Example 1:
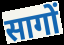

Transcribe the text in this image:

सागों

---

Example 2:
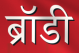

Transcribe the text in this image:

ब्रॉडी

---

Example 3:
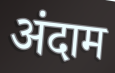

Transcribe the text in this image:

अंदाम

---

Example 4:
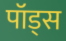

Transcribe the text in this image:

पॉड्स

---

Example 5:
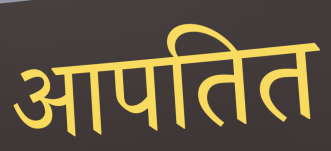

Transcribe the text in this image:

आपतित